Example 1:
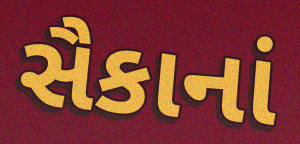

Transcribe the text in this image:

સૈકાનાં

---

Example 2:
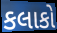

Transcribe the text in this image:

કલાકો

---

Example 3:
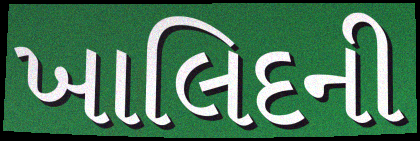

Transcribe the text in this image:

ખાલિદની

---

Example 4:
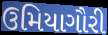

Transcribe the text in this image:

ઉમિયાગૌરી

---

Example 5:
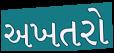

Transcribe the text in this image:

અખતરો